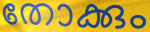
തോക്കും